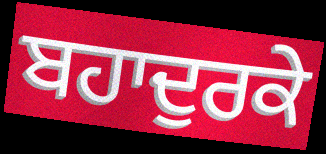
ਬਹਾਦੁਰਕੇ